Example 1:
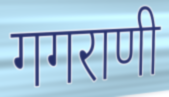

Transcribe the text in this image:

गगराणी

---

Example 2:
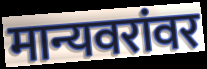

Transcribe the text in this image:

मान्यवरांवर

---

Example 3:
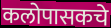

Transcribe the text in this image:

कलोपासकचे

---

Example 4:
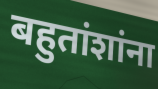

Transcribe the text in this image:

बहुतांशांना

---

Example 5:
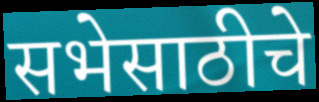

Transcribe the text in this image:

सभेसाठीचे